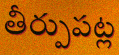
తీర్పుపట్ల